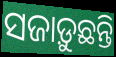
ସଜାଡ଼ୁଛନ୍ତି